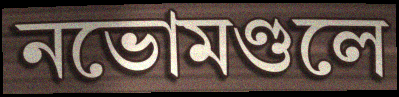
নভোমণ্ডলে